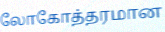
லோகோத்தரமான